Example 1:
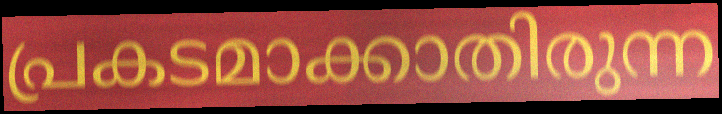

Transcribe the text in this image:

പ്രകടമാക്കാതിരുന്ന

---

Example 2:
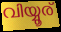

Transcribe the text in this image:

വിയ്യൂര്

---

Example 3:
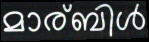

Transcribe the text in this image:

മാര്ബിൾ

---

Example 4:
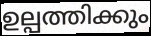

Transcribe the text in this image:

ഉല്പത്തിക്കും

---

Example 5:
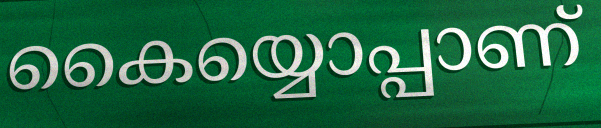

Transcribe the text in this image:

കൈയ്യൊപ്പാണ്